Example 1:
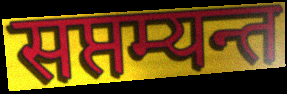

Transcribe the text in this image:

सप्तम्यन्त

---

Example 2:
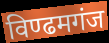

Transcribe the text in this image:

विण्ढमगंज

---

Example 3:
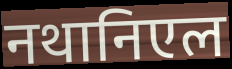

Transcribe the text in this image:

नथानिएल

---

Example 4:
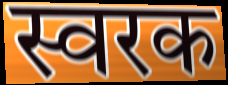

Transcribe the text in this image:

स्वरक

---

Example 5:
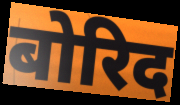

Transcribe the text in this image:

बोरिद